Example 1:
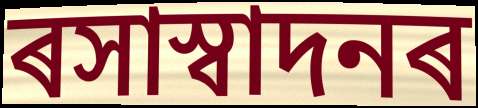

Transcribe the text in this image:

ৰসাস্বাদনৰ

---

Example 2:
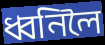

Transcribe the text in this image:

ধ্বনিলৈ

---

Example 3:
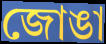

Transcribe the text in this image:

জোঙা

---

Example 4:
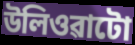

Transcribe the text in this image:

উলিওৱাটো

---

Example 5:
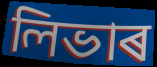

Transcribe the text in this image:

লিভাৰ